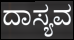
ದಾಸ್ಯವ